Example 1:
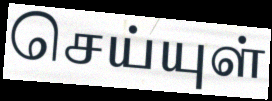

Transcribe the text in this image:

செய்யுள்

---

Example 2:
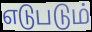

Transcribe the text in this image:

எடுபடும்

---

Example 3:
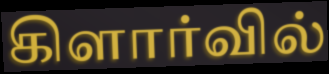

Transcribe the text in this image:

கிளார்வில்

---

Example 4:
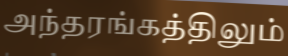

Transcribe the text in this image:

அந்தரங்கத்திலும்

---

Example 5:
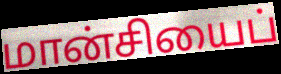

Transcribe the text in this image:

மான்சியைப்